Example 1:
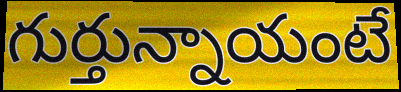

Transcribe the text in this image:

గుర్తున్నాయంటే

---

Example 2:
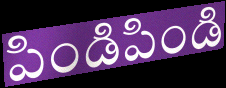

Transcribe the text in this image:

పిండిపిండి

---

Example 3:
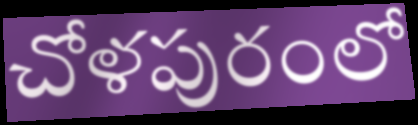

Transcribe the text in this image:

చోళపురంలో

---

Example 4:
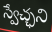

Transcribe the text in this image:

స్వేచ్ఛని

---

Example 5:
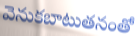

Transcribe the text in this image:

వెనుకబాటుతనంతో